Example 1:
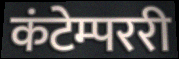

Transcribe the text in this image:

कंटेम्पररी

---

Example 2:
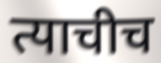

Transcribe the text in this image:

त्याचीच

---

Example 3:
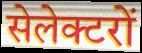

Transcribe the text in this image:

सेलेक्टरों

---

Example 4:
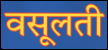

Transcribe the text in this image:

वसूलती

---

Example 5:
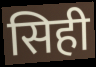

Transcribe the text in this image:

सिही